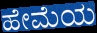
ಹೇಮೆಯ